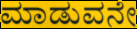
ಮಾಡುವನೇ